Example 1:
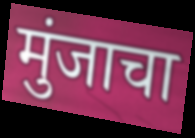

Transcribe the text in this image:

मुंजाचा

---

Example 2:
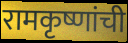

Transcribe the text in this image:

रामकृष्णांची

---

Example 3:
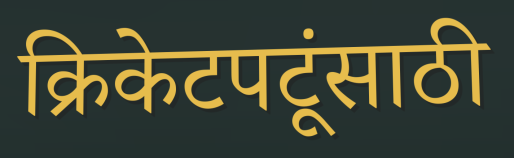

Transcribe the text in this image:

क्रिकेटपटूंसाठी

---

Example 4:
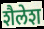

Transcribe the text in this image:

शैलेश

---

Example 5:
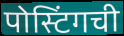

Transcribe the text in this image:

पोस्टिंगची